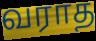
வராத